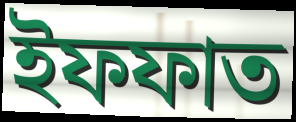
ইফফাত